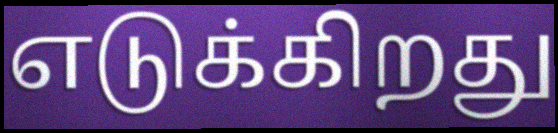
எடுக்கிறது